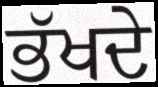
ਭੱਖਦੇ